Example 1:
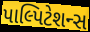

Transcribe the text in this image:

પાલ્પિટેશન્સ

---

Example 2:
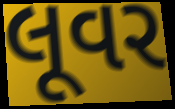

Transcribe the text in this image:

લૂવર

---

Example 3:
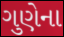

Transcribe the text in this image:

ગુણેના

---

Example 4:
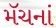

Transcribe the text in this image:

મૅચનાં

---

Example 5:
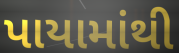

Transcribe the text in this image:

પાયામાંથી